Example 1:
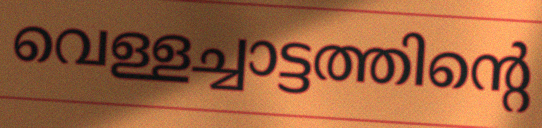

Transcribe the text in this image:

വെള്ളച്ചാട്ടത്തിന്റെ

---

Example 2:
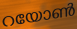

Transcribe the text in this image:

റയോൺ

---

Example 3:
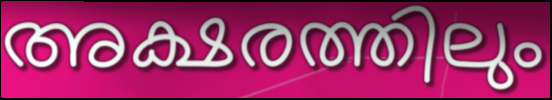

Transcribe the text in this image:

അക്ഷരത്തിലും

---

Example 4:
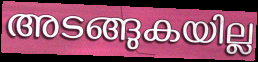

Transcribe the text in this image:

അടങ്ങുകയില്ല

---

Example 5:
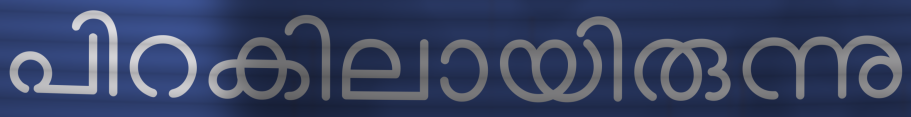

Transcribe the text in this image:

പിറകിലായിരുന്നു